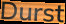
Durst